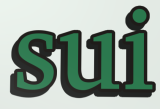
sui